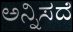
ಅನ್ನಿಸದೆ